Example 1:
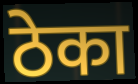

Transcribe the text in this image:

ठेका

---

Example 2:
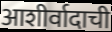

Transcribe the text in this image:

आशीर्वादाची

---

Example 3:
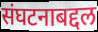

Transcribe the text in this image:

संघटनाबद्दल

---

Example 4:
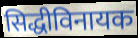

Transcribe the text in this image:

सिद्धीविनायक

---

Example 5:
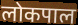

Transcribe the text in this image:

लोकपाल